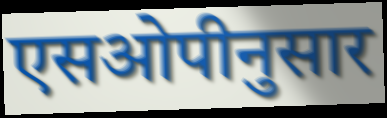
एसओपीनुसार